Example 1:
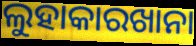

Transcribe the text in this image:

ଲୁହାକାରଖାନା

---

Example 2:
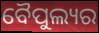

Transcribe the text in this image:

ବୈପୁଲ୍ୟର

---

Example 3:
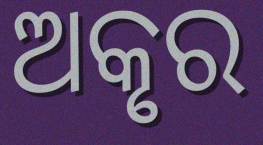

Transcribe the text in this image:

ଅକୃର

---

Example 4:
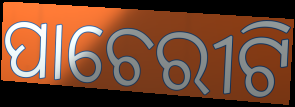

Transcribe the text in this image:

ପାଚେରୀଟି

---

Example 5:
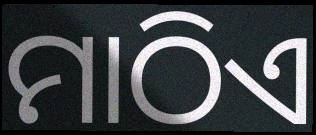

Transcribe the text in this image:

ମାଠିଏ